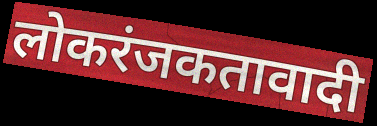
लोकरंजकतावादी